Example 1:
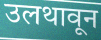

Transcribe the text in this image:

उलथावून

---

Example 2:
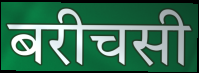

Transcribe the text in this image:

बरीचसी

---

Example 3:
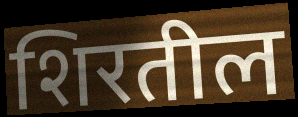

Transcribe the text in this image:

शिरतील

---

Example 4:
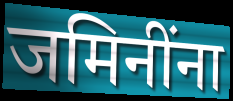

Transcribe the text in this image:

जमिनींना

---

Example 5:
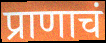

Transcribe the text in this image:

प्राणाचं